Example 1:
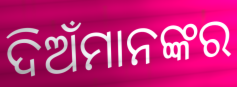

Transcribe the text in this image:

ଦିଅଁମାନଙ୍କର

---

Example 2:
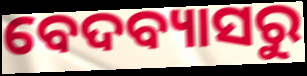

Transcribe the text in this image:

ବେଦବ୍ୟାସରୁ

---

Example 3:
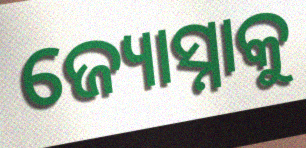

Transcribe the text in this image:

ଜ୍ୟୋସ୍ନାକୁ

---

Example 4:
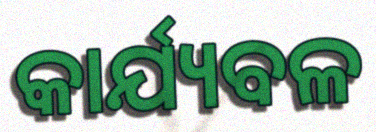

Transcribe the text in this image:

କାର୍ଯ୍ୟବଳ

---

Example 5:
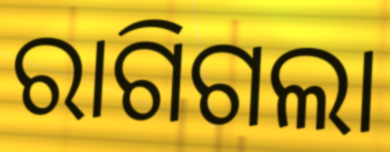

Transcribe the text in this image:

ରାଗିଗଲା